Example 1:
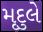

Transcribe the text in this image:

મૃદુલે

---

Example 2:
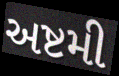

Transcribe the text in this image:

અષ્ટમી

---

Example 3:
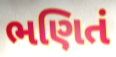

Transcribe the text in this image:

ભણિતં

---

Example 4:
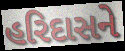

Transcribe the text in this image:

હરિદાસને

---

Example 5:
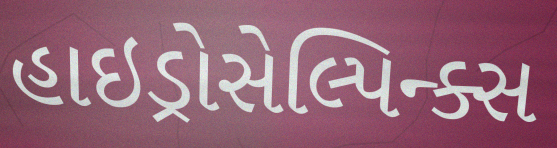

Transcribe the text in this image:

હાઇડ્રોસેલ્પિન્ક્સ